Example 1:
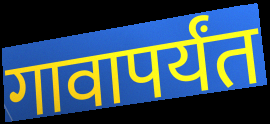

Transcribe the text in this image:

गावापर्यंत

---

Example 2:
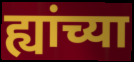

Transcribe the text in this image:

ह्यांच्या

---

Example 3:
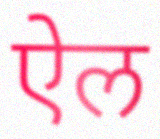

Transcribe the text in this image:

ऐल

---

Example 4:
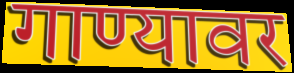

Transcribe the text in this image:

गाण्यावर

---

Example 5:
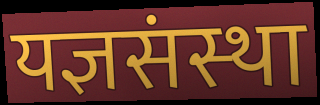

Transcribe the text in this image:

यज्ञसंस्था